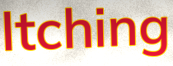
Itching